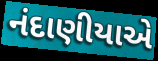
નંદાણીયાએ